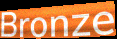
Bronze